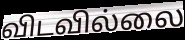
விடவில்லை